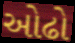
ઓઢો